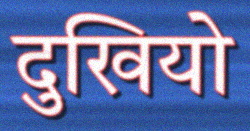
दुखियो